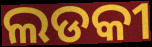
ଲଡକୀ